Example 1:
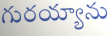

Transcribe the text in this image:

గురయ్యాను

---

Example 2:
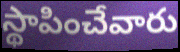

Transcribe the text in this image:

స్థాపించేవారు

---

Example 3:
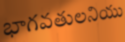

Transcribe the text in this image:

భాగవతులనియు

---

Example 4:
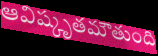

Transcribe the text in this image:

ఆవిష్కృతమౌతుంది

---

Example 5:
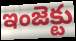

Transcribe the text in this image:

ఇంజెక్టు